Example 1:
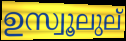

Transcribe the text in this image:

ഉസ്വൂലുല്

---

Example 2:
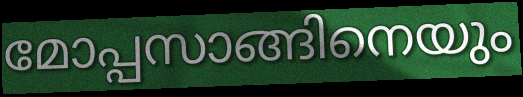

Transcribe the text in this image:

മോപ്പസാങ്ങിനെയും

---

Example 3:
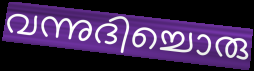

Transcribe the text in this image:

വന്നുദിച്ചൊരു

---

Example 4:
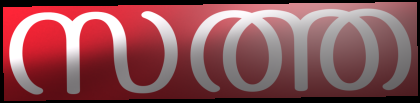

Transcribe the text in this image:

സത്ത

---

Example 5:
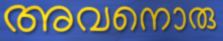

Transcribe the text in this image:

അവനൊരു